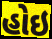
હોઇ